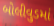
બોલીવુડમાં